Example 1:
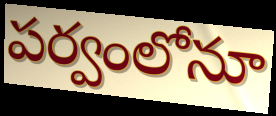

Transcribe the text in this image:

పర్వంలోనూ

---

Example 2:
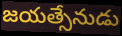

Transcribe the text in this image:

జయత్సేనుడు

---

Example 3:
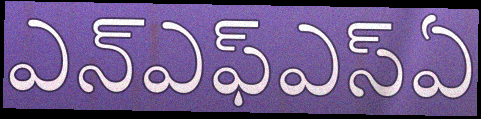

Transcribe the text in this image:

ఎన్ఎఫ్ఎస్ఏ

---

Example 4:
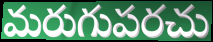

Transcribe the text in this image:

మరుగుపరచు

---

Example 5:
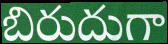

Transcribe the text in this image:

బిరుదుగా